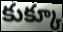
కుక్కూ